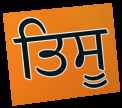
ਤਿਸੂ